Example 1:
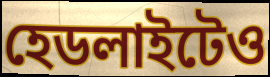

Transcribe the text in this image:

হেডলাইটেও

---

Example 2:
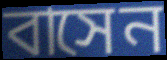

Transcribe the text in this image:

বাসেন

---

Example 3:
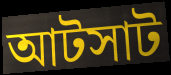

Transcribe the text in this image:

আটসাট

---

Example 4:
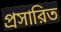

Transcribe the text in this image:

প্রসারিত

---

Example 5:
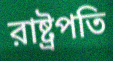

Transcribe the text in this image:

রাষ্ট্রপতি